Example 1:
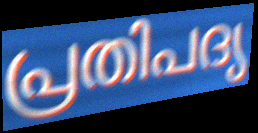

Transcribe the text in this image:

പ്രതിപദ്യ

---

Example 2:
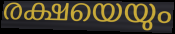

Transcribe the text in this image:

രക്ഷയെയും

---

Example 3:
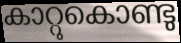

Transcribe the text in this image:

കാറ്റുകൊണ്ടു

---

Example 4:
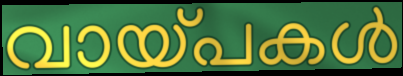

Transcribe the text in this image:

വായ്പകൾ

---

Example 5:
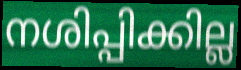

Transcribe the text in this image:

നശിപ്പിക്കില്ല